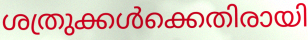
ശത്രുക്കൾക്കെതിരായി